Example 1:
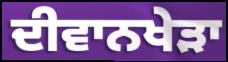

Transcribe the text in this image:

ਦੀਵਾਨਖੇੜਾ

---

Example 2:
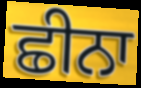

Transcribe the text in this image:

ਛੀਨਾ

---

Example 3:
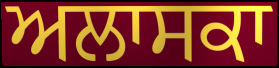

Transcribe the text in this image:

ਅਲਾਸਕਾ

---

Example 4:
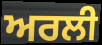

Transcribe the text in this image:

ਅਰਲੀ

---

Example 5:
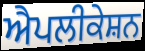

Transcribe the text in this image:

ਐਪਲੀਕੇਸ਼ਨ